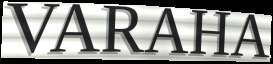
VARAHA